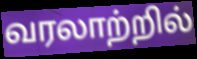
வரலாற்றில்